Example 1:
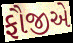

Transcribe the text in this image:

ફૌજીએ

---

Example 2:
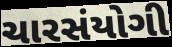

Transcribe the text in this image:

ચારસંયોગી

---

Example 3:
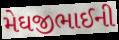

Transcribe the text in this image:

મેઘજીભાઈની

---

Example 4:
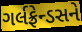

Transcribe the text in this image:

ગર્લફ્રેન્ડસને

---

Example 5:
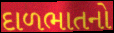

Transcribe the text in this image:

દાળભાતનો